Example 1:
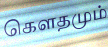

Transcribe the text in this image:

கெளதமும்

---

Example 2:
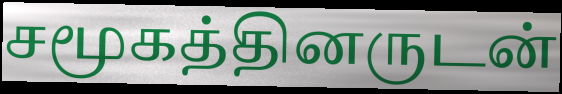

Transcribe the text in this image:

சமூகத்தினருடன்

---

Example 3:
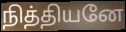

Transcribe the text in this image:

நித்தியனே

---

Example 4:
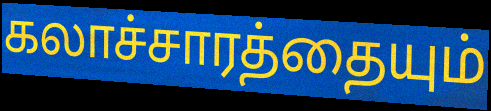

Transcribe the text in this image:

கலாச்சாரத்தையும்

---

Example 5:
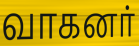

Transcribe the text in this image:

வாகனர்